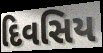
દિવસિય